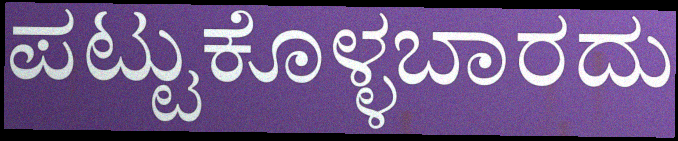
ಪಟ್ಟುಕೊಳ್ಳಬಾರದು